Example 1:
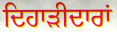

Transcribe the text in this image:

ਦਿਹਾੜੀਦਾਰਾਂ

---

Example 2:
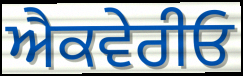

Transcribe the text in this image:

ਐਕਵੇਰੀਓ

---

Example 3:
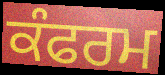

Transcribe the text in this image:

ਕੰਫਰਮ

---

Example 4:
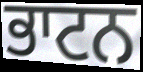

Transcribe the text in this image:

ਭਾਟਨ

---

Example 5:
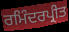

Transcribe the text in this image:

ਰਮਿੰਦਰਪ੍ਰੀਤ